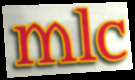
mlc